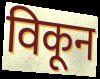
विकून